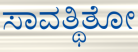
ಸಾವತ್ಥಿತೋ